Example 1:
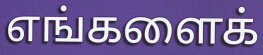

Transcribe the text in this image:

எங்களைக்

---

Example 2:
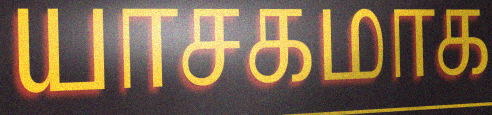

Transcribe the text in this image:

யாசகமாக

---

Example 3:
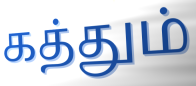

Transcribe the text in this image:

கத்தும்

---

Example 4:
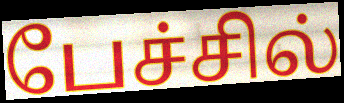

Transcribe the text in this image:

பேச்சில்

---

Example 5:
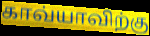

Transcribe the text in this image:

காவ்யாவிற்கு